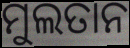
ମୁଲତାନ